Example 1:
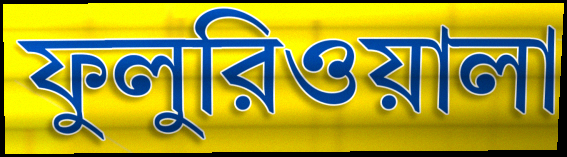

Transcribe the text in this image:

ফুলুরিওয়ালা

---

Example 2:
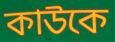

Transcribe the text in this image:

কাউকে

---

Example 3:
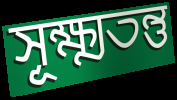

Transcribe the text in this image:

সূক্ষ্মতন্তু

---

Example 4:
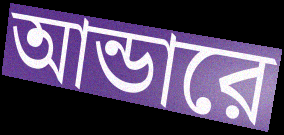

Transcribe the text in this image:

আন্ডারে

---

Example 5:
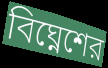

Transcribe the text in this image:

বিঘ্নেশের